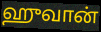
ஹுவான்